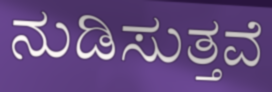
ನುಡಿಸುತ್ತವೆ